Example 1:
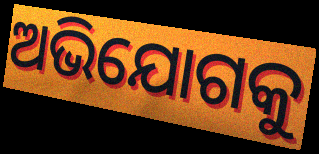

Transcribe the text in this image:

ଅଭିଯୋଗକୁ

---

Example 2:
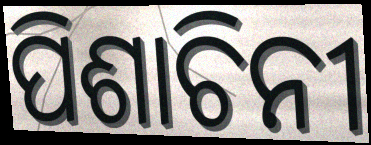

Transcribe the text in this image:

ପିଶାଚିନୀ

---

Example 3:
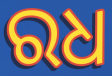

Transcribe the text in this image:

ରଧ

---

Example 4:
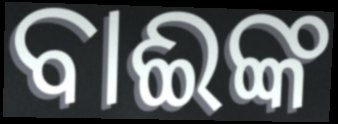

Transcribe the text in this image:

ବାଈଙ୍କ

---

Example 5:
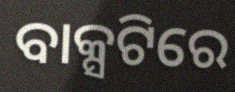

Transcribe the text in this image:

ବାକ୍ସଟିରେ